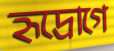
হৃদ্রোগে